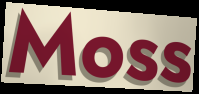
Moss